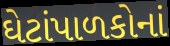
ઘેટાંપાળકોનાં